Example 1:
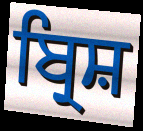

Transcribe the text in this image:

ਬ੍ਰਿਸ਼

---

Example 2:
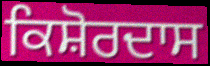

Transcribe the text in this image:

ਕਿਸ਼ੋਰਦਾਸ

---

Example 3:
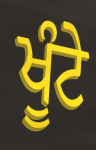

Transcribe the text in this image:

ਖੂੰਟੇ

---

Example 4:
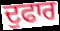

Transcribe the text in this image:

ਦੁਫਾਰ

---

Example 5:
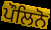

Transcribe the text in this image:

ਪੌਲਿਨੋ